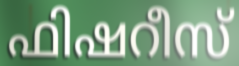
ഫിഷറീസ്